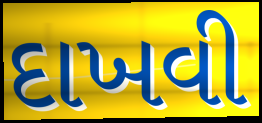
દાખવી